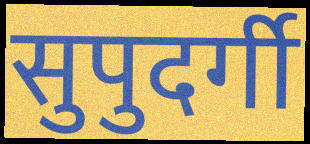
सुपुदर्गी